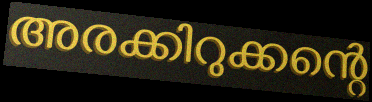
അരക്കിറുക്കന്റെ